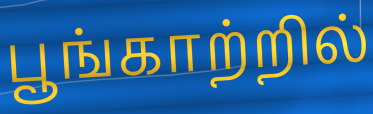
பூங்காற்றில்